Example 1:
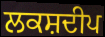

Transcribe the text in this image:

ਲਕਸ਼ਦੀਪ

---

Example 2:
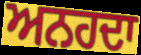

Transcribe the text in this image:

ਅਨਹਦਾ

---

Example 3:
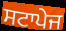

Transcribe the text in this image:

ਸਟਾਪੇਜ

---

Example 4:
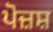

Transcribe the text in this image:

ਪੋਜ਼ਸ਼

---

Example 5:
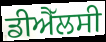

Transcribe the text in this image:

ਡੀਐੱਲਸੀ